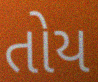
તોય